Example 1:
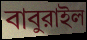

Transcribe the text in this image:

বাবুরাইল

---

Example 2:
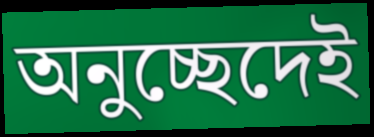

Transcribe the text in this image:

অনুচ্ছেদেই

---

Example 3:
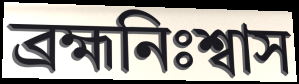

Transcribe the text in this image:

ব্রহ্মনিঃশ্বাস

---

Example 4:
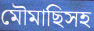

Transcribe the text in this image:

মৌমাছিসহ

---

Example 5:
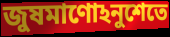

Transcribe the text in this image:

জুষমাণোঽনুশেতে